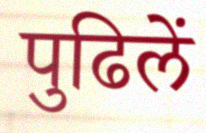
पुढिलें